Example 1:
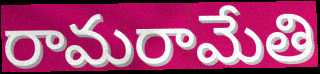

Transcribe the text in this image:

రామరామేతి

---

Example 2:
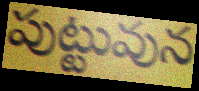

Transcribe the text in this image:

పుట్టువున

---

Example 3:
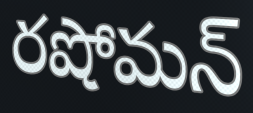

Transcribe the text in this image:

రషోమన్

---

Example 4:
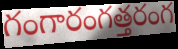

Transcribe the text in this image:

గంగారంగత్తరంగ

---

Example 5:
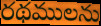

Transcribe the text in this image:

రథములను